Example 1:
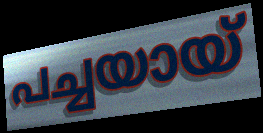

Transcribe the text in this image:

പച്ചയായ്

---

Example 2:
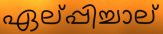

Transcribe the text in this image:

ഏല്പ്പിച്ചാല്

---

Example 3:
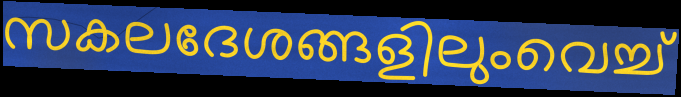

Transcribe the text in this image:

സകലദേശങ്ങളിലുംവെച്ച്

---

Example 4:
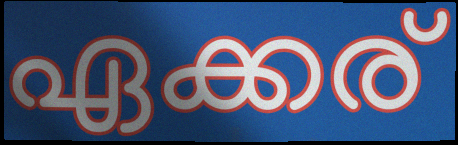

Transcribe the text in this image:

ഏക്കര്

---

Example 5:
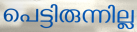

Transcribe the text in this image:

പെട്ടിരുന്നില്ല